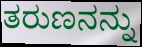
ತರುಣನನ್ನು